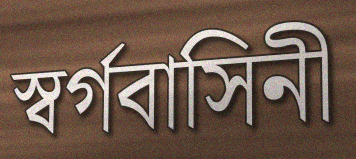
স্বর্গবাসিনী